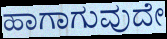
ಹಾಗಾಗುವುದೇ